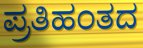
ಪ್ರತಿಹಂತದ